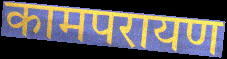
कामपरायण